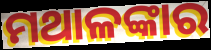
ମଥାଳଙ୍କାର